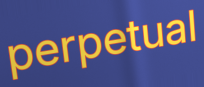
perpetual